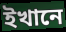
ইখানে